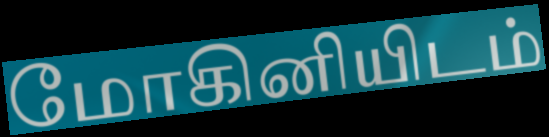
மோகினியிடம்